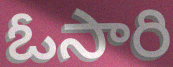
ఓసారి